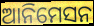
ଆନିମେସନ